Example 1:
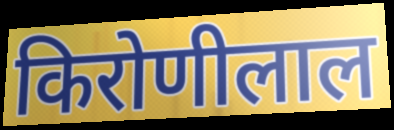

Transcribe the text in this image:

किरोणीलाल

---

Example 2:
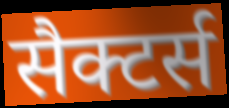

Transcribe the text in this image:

सैक्टर्स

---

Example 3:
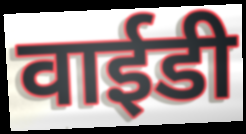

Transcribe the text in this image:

वाईडी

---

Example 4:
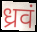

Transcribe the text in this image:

ध्रवं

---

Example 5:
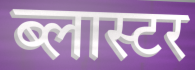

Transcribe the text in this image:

ब्लास्टर